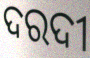
ଦରଦୀ